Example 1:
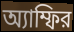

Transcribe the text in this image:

অ্যাম্ফির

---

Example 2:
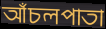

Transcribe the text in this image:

আঁচলপাতা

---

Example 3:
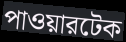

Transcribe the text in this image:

পাওয়ারটেক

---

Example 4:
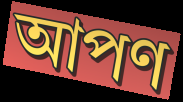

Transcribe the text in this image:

আপণ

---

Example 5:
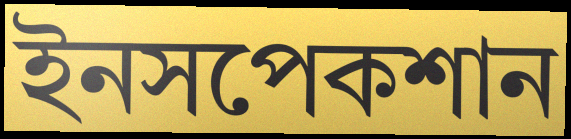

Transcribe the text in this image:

ইনসপেকশান